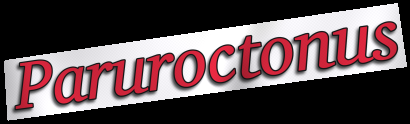
Paruroctonus